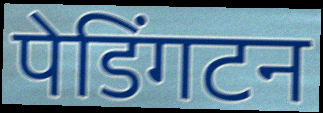
पेडिंगटन